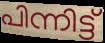
പിന്നിട്ട്